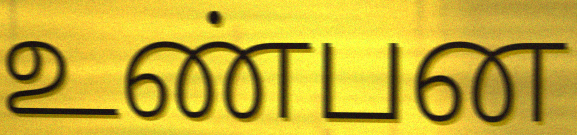
உண்பன